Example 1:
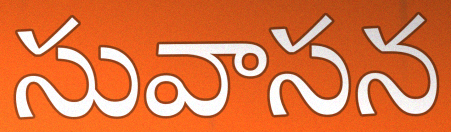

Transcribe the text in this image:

సువాసన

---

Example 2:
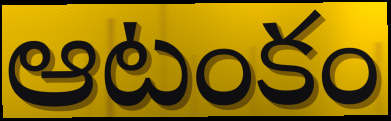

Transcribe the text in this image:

ఆటంకం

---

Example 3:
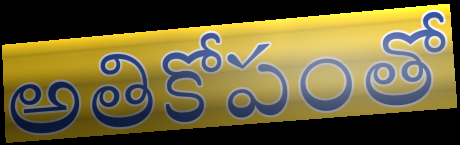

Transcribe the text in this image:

అతికోపంతో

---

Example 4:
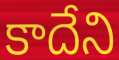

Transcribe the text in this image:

కాదేని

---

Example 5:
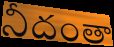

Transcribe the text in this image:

నీదంతా